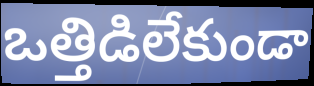
ఒత్తిడిలేకుండా